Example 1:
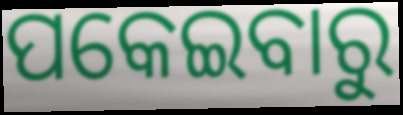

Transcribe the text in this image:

ପକେଇବାରୁ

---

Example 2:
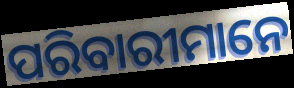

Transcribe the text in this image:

ପରିବାରୀମାନେ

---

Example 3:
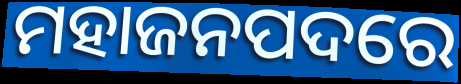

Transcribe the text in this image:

ମହାଜନପଦରେ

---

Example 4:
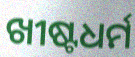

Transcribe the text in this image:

ଖୀଷ୍ଟଧର୍ମ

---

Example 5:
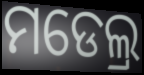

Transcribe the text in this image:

ମଡେଲ୍ର